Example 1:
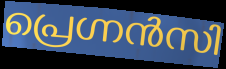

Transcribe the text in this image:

പ്രെഗ്നൻസി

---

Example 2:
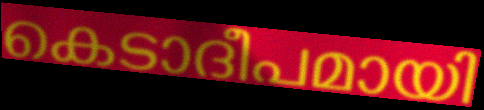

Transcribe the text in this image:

കെടാദീപമായി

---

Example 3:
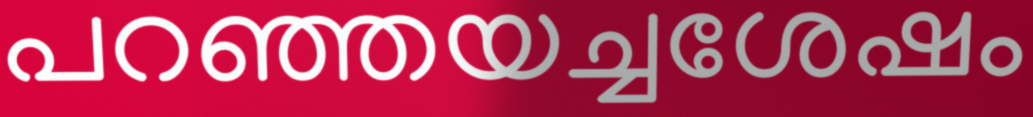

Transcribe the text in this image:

പറഞ്ഞയച്ചശേഷം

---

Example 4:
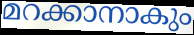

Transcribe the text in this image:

മറക്കാനാകും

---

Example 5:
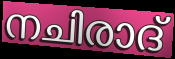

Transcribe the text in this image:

നചിരാദ്